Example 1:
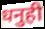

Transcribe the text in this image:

धनुही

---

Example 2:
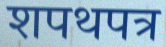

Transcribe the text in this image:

शपथपत्र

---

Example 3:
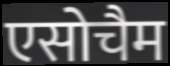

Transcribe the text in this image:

एसोचैम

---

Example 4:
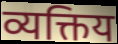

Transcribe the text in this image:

व्यक्तिय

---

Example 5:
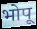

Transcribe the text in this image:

भोपू